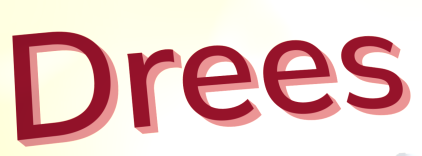
Drees